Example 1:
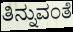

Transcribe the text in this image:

ತಿನ್ನುವಂತೆ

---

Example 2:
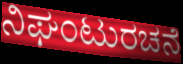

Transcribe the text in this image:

ನಿಘಂಟುರಚನೆ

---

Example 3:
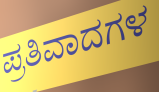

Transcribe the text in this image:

ಪ್ರತಿವಾದಗಳ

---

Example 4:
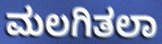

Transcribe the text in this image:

ಮಲಗಿತಲಾ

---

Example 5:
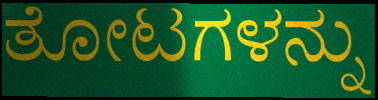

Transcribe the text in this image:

ತೋಟಗಳನ್ನು